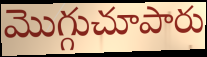
మొగ్గుచూపారు